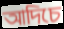
আদিচে